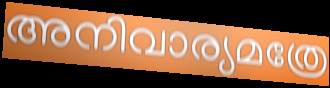
അനിവാര്യമത്രേ